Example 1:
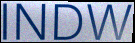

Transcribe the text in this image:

INDW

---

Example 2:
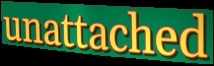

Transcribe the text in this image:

unattached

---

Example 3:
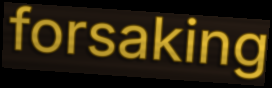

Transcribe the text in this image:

forsaking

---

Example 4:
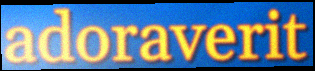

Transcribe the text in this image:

adoraverit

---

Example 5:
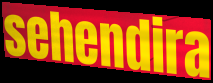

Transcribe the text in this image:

sehendira